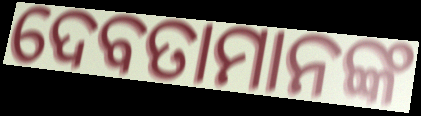
ଦେବତାମାନଙ୍କ